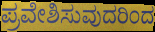
ಪ್ರವೇಶಿಸುವುದರಿಂದ